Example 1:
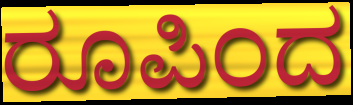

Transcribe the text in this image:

ರೂಪಿಂದ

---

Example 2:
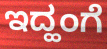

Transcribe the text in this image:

ಇದ್ಹಂಗೆ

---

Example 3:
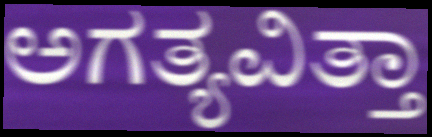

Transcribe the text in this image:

ಅಗತ್ಯವಿತ್ತಾ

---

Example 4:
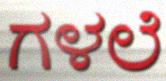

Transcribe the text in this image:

ಗಳಲೆ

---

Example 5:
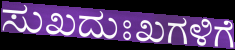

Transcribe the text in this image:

ಸುಖದುಃಖಗಳಿಗೆ